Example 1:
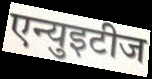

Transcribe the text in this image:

एन्युइटीज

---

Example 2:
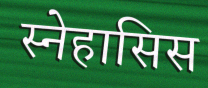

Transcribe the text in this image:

स्नेहासिस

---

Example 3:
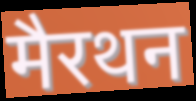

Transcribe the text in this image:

मैरथन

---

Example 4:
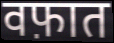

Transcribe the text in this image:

वफ़ात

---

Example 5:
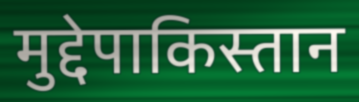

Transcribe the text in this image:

मुद्देपाकिस्तान